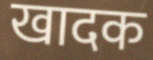
खादक